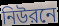
নিউরনে